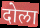
दोला